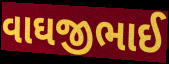
વાઘજીભાઈ